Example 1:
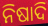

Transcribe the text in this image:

ନିଷାଦି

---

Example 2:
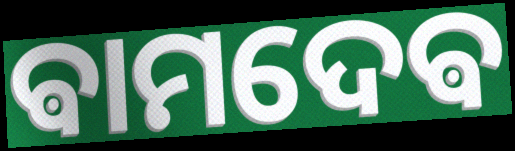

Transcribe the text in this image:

ଵାମଦେଵ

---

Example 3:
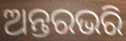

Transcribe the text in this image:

ଅନ୍ତରଭରି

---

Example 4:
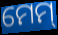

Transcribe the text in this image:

ମେମ୍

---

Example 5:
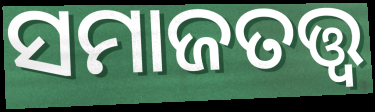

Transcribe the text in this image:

ସମାଜତତ୍ତ୍ବ